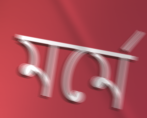
মর্মে